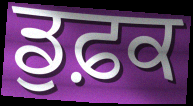
ਡੁਫ਼ਕ